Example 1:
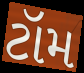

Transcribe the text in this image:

ટૉમ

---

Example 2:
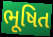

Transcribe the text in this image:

ભૂષિત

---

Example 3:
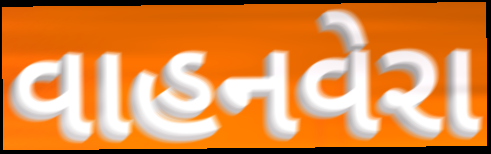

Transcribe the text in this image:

વાહનવેરા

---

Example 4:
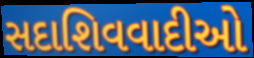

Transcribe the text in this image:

સદાશિવવાદીઓ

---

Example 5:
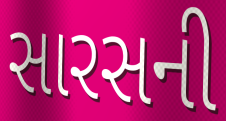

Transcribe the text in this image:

સારસની